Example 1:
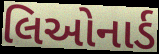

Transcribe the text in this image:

લિઓનાર્ડ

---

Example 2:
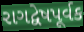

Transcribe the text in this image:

રાગદ્વેષપૂર્વક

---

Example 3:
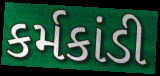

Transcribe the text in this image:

કર્મકાંડી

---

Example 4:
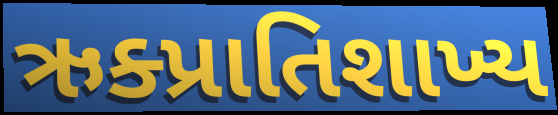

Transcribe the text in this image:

ઋક્પ્રાતિશાખ્ય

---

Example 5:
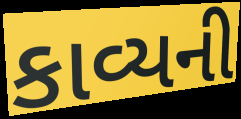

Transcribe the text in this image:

કાવ્યની